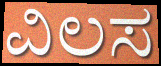
ವಿಲಸ